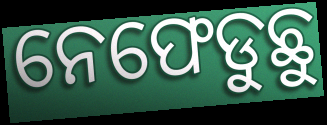
ନେଫେଡୁଛୁ